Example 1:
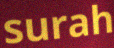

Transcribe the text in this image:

surah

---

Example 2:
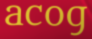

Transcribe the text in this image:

acog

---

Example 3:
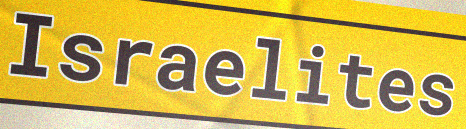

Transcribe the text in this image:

Israelites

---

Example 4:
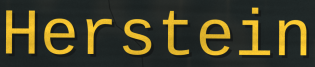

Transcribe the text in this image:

Herstein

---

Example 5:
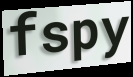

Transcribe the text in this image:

fspy